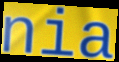
nia